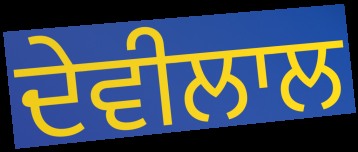
ਦੇਵੀਲਾਲ